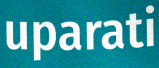
uparati